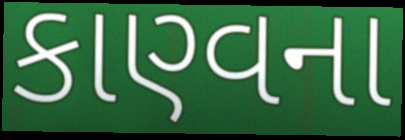
કાણ્વના